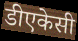
डीएकेसी